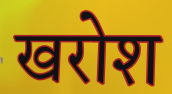
खरोश